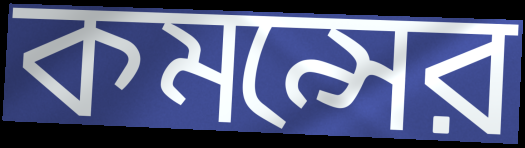
কমন্সের